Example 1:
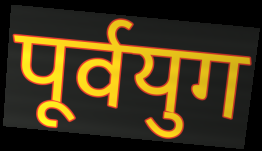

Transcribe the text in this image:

पूर्वयुग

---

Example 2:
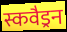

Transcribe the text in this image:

स्कवैड्रन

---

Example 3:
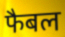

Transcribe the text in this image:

फैबल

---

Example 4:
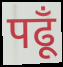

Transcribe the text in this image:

पढूँ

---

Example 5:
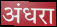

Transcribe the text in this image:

अंधरा